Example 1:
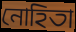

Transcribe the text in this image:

নোহিতা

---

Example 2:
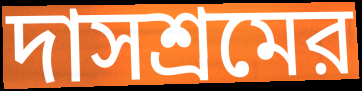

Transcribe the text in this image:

দাসশ্রমের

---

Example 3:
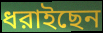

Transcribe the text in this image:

ধরাইছেন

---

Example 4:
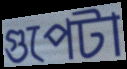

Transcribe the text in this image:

গুপেটা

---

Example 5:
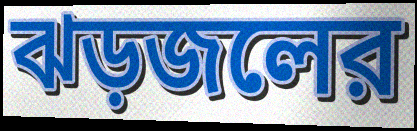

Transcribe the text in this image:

ঝড়জলের